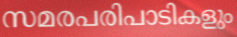
സമരപരിപാടികളും